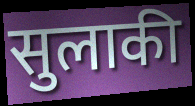
सुलाकी